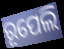
ରୂପେଲି